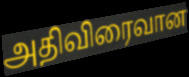
அதிவிரைவான